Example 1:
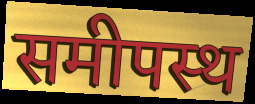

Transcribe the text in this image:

समीपस्थ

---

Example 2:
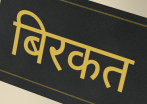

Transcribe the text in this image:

बिरकत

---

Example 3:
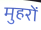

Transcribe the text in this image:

मुहरों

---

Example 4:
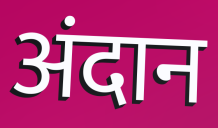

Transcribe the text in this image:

अंदान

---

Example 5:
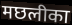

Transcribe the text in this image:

मछलीका